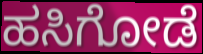
ಹಸಿಗೋಡೆ